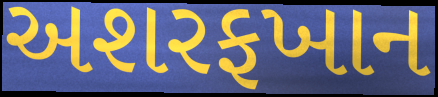
અશરફખાન